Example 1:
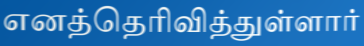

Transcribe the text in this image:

எனத்தெரிவித்துள்ளார்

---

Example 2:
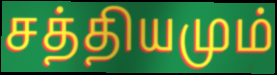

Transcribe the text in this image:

சத்தியமும்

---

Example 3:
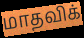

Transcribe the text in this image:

மாதவிக்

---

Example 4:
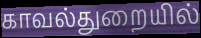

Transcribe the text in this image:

காவல்துறையில்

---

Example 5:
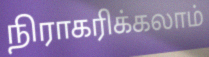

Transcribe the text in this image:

நிராகரிக்கலாம்